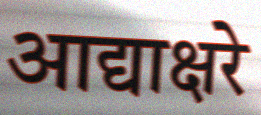
आद्याक्षरे